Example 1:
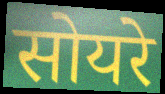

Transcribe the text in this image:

सोयरे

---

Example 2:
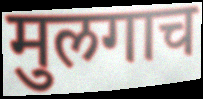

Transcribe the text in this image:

मुलगाच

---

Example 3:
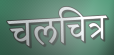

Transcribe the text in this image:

चलचित्र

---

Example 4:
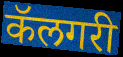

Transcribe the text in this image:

कॅलगरी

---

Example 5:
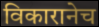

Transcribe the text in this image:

विकारानेच